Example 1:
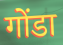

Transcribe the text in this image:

गोंडा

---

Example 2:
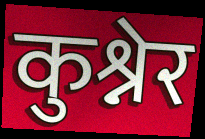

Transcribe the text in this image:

कुश्नेर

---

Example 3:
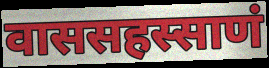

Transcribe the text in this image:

वाससहस्साणं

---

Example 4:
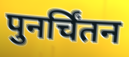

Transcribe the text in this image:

पुनर्चिंतन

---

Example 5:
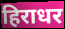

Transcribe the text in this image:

हिराधर